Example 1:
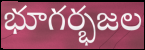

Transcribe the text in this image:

భూగర్భజల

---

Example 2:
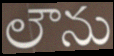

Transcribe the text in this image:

లౌను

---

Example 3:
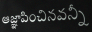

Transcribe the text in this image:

ఆజ్ఞాపించినవన్నీ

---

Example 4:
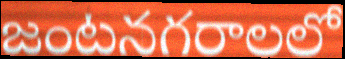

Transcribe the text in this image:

జంటనగరాలలో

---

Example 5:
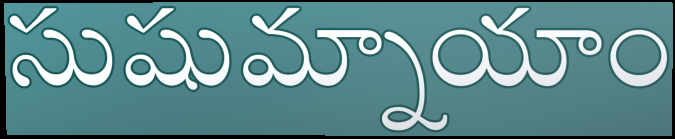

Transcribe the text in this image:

సుషుమ్నాయాం